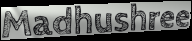
Madhushree